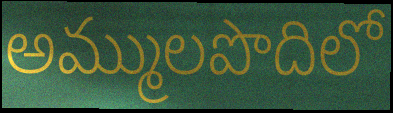
అమ్ములపొదిలో